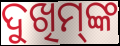
ଦୁଖିମ୍‌ଙ୍କ